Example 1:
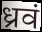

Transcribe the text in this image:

ध्रवं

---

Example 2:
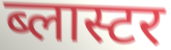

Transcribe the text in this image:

ब्लास्टर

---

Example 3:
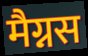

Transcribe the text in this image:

मैग्नस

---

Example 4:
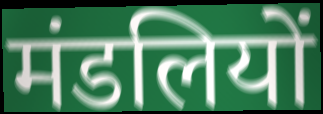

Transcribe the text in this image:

मंडलियों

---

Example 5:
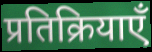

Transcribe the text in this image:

प्रतिक्रियाएँ